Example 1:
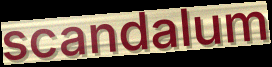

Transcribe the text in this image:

scandalum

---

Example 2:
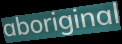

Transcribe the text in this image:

aboriginal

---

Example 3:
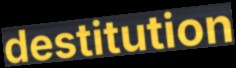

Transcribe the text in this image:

destitution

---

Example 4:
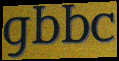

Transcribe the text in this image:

gbbc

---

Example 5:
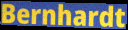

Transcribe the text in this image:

Bernhardt